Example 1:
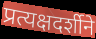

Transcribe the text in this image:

प्रत्यक्षदर्शीने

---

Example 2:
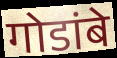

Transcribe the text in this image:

गोडांबे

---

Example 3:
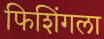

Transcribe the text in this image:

फिशिंगला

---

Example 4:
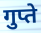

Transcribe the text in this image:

गुप्ते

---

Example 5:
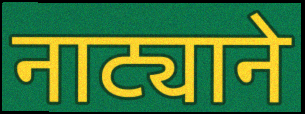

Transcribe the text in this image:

नाट्याने